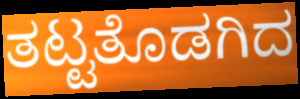
ತಟ್ಟತೊಡಗಿದ